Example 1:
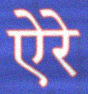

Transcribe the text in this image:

ऐरे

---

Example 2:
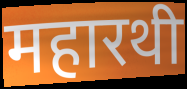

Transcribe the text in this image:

महारथी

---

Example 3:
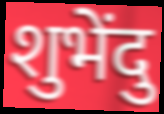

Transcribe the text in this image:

शुभेंदु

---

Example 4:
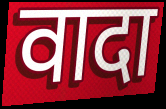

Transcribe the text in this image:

वादा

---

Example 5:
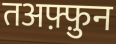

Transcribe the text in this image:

तअफ़्फ़ुन